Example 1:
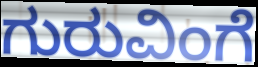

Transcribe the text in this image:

ಗುರುವಿಂಗೆ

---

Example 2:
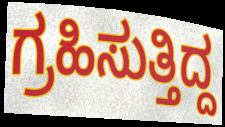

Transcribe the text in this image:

ಗ್ರಹಿಸುತ್ತಿದ್ದ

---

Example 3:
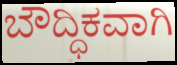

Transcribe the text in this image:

ಬೌದ್ಧಿಕವಾಗಿ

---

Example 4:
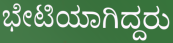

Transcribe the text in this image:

ಭೇಟಿಯಾಗಿದ್ದರು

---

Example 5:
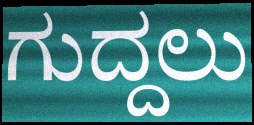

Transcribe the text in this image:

ಗುದ್ದಲು